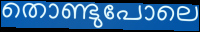
തൊണ്ടുപോലെ